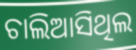
ଚାଲିଆସିଥିଲ